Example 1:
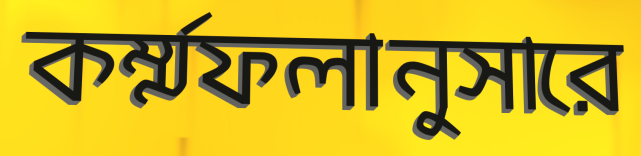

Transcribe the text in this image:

কর্ম্মফলানুসারে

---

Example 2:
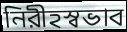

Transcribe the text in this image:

নিরীহস্বভাব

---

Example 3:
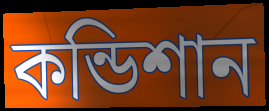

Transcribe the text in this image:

কন্ডিশান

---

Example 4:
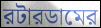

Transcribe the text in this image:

রটারডামের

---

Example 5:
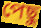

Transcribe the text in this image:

পেছু